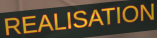
REALISATION